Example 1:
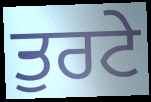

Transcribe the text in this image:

ਤੁਰਟੇ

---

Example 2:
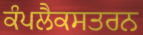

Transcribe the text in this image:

ਕੰਪਲੈਕਸਤਰਨ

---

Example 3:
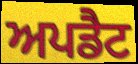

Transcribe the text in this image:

ਅਪਡੈਟ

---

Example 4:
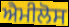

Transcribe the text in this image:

ਐਮੀਲੋਸ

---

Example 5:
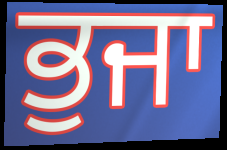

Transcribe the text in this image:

ਭੁਜਾ